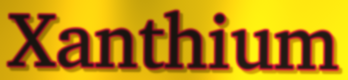
Xanthium